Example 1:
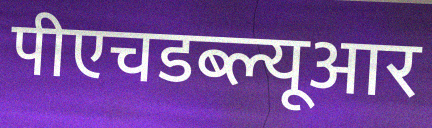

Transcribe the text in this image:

पीएचडब्ल्यूआर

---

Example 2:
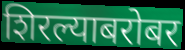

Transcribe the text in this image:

शिरल्याबरोबर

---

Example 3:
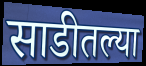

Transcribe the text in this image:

साडीतल्या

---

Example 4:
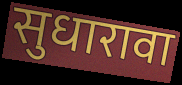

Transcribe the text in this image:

सुधारावा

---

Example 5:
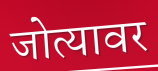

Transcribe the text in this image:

जोत्यावर